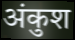
अंकुश